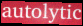
autolytic